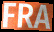
FRA